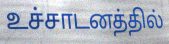
உச்சாடனத்தில்